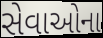
સેવાઓના